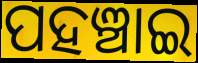
ପହଞ୍ଚାଇ